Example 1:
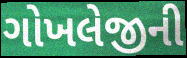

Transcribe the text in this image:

ગોખલેજીની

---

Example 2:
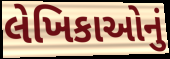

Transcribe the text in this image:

લેખિકાઓનું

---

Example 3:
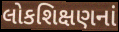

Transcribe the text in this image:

લોકશિક્ષણનાં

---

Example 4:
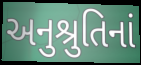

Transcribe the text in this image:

અનુશ્રુતિનાં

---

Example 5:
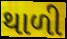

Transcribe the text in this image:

થાળી